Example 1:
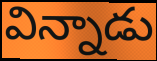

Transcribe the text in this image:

విన్నాడు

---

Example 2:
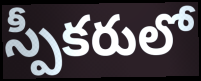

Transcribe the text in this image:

స్పీకరులో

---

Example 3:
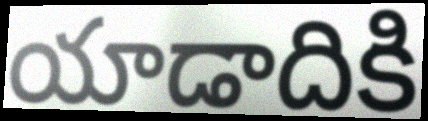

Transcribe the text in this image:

యాడాదికి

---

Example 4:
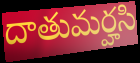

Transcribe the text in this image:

దాతుమర్హసి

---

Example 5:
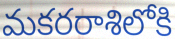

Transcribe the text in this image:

మకరరాశిలోకి